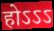
होऽऽऽ